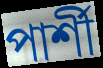
পার্শী